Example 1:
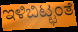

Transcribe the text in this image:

ಇಳಿಬಿಟ್ಟಂತೆ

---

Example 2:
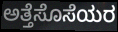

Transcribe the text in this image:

ಅತ್ತೆಸೊಸೆಯರ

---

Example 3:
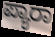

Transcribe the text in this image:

ಪ್ಯಾರಾ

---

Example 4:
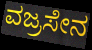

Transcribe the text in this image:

ವಜ್ರಸೇನ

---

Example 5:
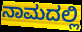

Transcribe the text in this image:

ನಾಮದಲ್ಲಿ